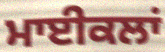
ਮਾਈਕਲਾਂ